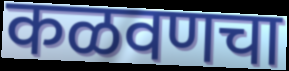
कळवणचा